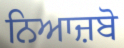
ਨਿਆਜ਼ਬੋ